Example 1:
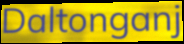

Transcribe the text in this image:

Daltonganj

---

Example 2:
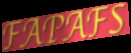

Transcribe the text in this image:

FAPAFS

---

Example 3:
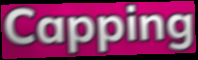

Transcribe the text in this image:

Capping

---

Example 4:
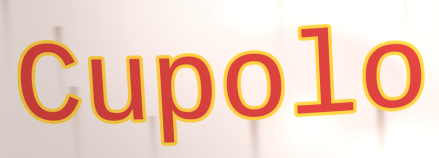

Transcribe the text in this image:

Cupolo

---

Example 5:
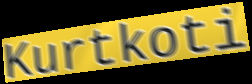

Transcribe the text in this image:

Kurtkoti